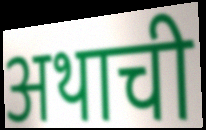
अथाची